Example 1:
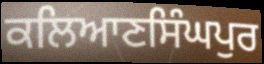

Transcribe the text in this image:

ਕਲਿਆਣਸਿੰਘਪੁਰ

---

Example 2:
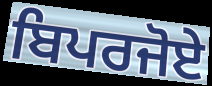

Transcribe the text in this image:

ਬਿਪਰਜੋਏ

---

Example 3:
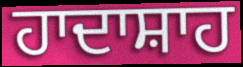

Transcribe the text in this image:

ਹਾਦਾਸ਼ਾਹ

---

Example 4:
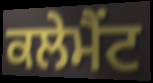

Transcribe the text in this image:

ਕਲੇਮੈਂਟ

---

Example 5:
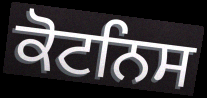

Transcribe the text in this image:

ਕੋਟਨਿਸ